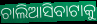
ଚାଲିଆସିବାଟାକୁ